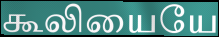
கூலியையே